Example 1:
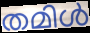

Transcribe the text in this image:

തമിൾ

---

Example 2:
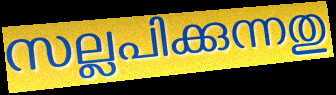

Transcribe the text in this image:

സല്ലപിക്കുന്നതു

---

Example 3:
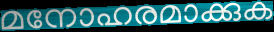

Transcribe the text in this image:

മനോഹരമാക്കുക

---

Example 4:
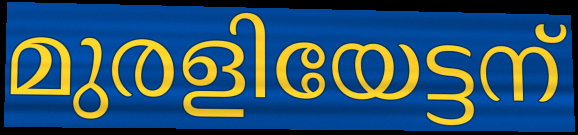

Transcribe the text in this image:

മുരളിയേട്ടന്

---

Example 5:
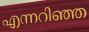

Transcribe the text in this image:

എന്നറിഞ്ഞ